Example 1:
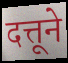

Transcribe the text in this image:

दत्तूने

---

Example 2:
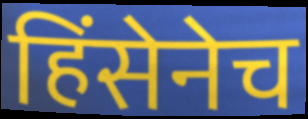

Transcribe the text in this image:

हिंसेनेच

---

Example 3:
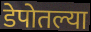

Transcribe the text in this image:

डेपोतल्या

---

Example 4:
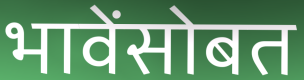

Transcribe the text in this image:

भावेंसोबत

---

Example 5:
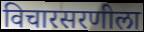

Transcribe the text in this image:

विचारसरणीला